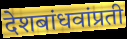
देशबांधवांप्रती